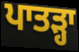
ਪਾਤੜ੍ਹਾ